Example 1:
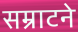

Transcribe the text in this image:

सम्राटने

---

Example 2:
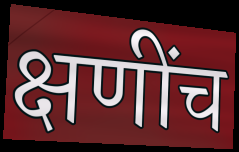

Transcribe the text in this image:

क्षणींच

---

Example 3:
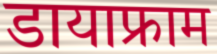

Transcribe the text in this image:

डायाफ्राम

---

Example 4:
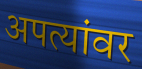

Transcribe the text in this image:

अपत्यांवर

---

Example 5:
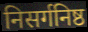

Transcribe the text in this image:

निसर्गनिष्ठ